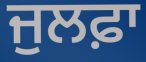
ਜੁਲਫ਼ਾ